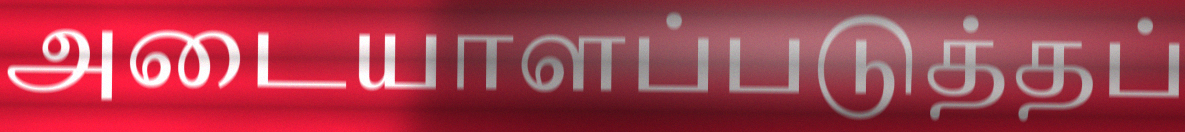
அடையாளப்படுத்தப்